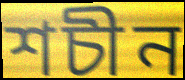
শচীন